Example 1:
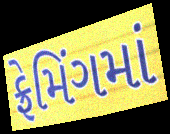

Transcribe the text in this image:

ફ્રેમિંગમાં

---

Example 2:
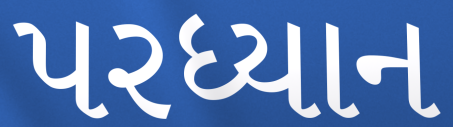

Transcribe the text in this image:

પરધ્યાન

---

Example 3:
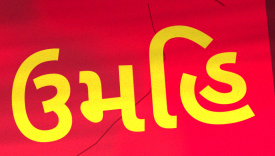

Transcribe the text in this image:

ઉમહિ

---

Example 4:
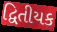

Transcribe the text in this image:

દ્વિતીયક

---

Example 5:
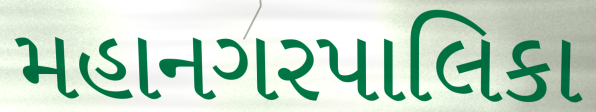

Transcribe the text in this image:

મહાનગરપાલિકા